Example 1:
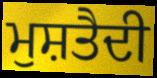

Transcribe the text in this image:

ਮੁਸ਼ਤੈਦੀ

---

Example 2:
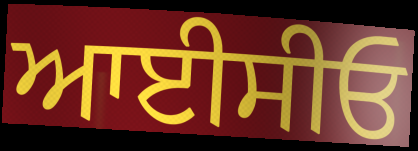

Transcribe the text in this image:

ਆਈਸੀਓ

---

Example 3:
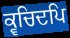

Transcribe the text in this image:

ਕ੍ਵਚਿਦਪਿ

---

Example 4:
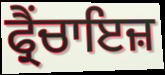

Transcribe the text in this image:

ਫ੍ਰੈਂਚਾਇਜ਼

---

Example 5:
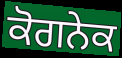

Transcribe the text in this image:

ਕੋਗਨੇਕ